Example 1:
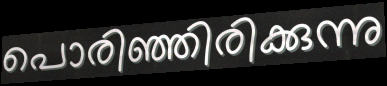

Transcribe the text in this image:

പൊരിഞ്ഞിരിക്കുന്നു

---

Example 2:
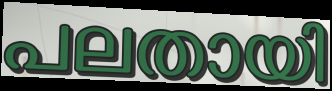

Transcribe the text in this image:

പലതായി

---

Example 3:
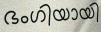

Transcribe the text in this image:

ഭംഗിയായി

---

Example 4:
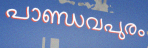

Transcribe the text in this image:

പാണ്ഡവപുരം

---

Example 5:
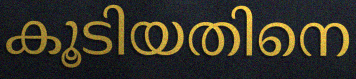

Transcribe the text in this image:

കൂടിയതിനെ